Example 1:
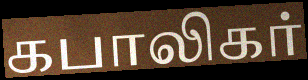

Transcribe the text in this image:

கபாலிகர்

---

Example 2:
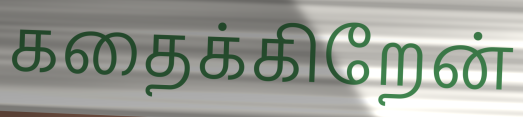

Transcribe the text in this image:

கதைக்கிறேன்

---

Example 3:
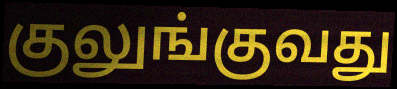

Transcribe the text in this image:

குலுங்குவது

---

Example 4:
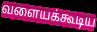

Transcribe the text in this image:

வளையக்கூடிய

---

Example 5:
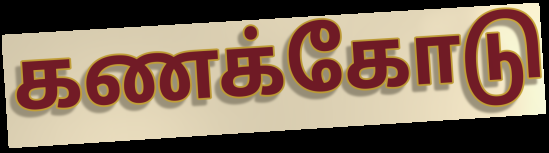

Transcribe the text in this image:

கணக்கோடு